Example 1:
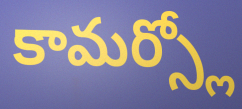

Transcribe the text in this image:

కామర్స్లో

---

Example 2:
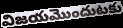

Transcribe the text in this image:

విజయమొందుటకు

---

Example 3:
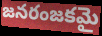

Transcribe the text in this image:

జనరంజకమై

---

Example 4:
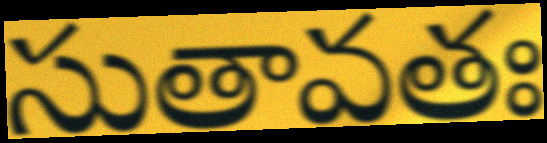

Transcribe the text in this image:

సుతావతః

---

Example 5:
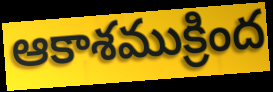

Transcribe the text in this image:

ఆకాశముక్రింద